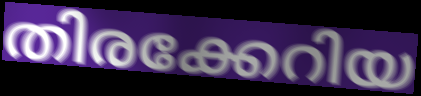
തിരക്കേറിയ